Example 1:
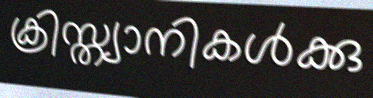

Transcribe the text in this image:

ക്രിസ്ത്യാനികൾക്കു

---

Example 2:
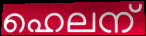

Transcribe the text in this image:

ഹെലന്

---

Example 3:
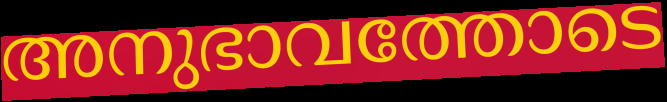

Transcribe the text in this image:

അനുഭാവത്തോടെ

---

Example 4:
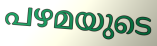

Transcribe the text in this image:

പഴമയുടെ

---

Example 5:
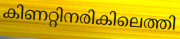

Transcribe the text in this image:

കിണറ്റിനരികിലെത്തി